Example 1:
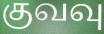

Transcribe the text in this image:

குவவு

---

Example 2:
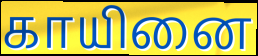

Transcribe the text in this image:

காயினை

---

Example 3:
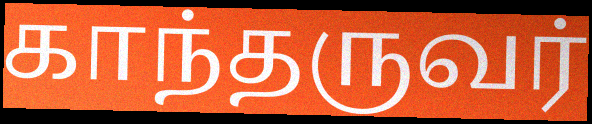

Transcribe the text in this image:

காந்தருவர்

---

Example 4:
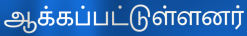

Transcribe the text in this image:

ஆக்கப்பட்டுள்ளனர்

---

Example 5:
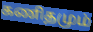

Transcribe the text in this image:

கணிதமும்